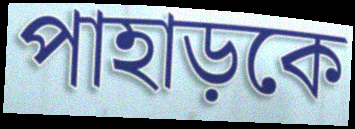
পাহাড়কে